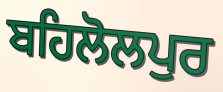
ਬਹਿਲੋਲਪੁਰ